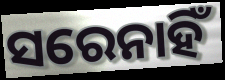
ସରେନାହିଁ